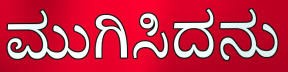
ಮುಗಿಸಿದನು